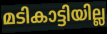
മടികാട്ടിയില്ല